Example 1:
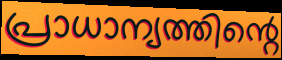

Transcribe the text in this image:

പ്രാധാന്യത്തിന്റെ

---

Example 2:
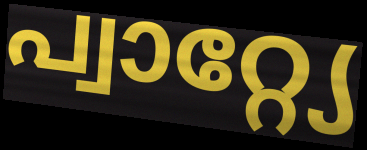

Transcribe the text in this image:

പ്വാറ്റ്യേ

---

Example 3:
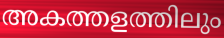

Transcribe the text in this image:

അകത്തളത്തിലും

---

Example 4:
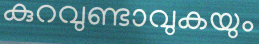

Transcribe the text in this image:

കുറവുണ്ടാവുകയും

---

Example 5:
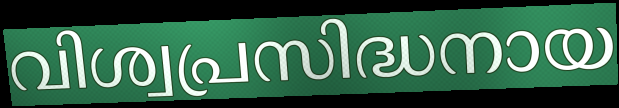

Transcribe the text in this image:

വിശ്വപ്രസിദ്ധനായ